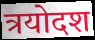
त्रयोदश